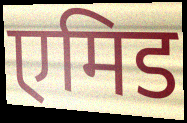
एमिड